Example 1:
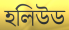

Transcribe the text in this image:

হলিউড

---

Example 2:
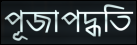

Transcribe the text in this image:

পূজাপদ্ধতি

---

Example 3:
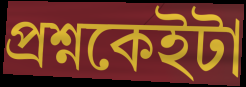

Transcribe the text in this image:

প্ৰশ্নকেইটা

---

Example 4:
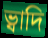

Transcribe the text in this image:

ভ্বাদি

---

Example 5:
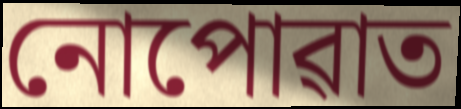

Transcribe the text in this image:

নোপোৱাত